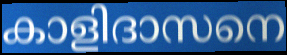
കാളിദാസനെ